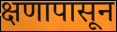
क्षणापासून